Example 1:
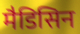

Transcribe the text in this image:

मैडिसिन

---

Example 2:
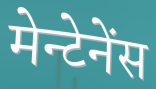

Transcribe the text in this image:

मेन्टेनेंस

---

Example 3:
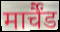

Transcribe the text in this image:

मार्चैंड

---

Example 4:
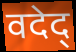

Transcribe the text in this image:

वदेद्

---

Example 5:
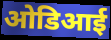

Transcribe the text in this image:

ओडिआई